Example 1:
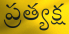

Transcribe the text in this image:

ప్రత్యక్ష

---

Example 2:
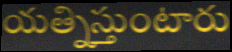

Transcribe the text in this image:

యత్నిస్తుంటారు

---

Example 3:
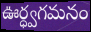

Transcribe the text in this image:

ఊర్ధ్వగమనం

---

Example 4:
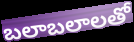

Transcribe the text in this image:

బలాబలాలతో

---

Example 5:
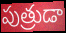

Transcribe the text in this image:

పుత్రుడా